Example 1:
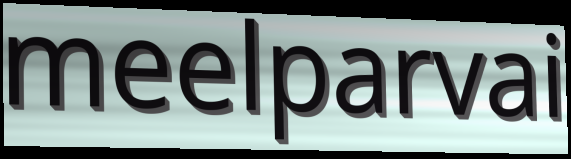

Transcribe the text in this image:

meelparvai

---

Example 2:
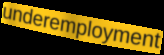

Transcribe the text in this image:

underemployment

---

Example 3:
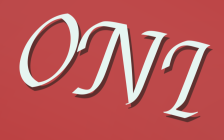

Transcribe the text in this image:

ONI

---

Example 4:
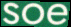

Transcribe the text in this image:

soe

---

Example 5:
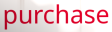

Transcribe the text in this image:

purchase